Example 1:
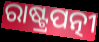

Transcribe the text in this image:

ରାଷ୍ଟ୍ରପତ୍ନୀ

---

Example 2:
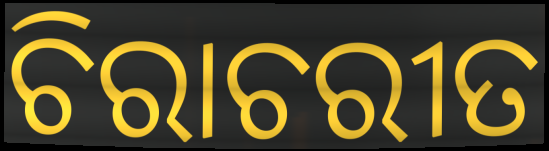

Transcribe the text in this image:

ଚିରାଚରୀତ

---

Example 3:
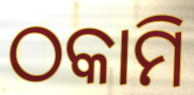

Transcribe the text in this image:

ଠକାମି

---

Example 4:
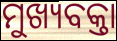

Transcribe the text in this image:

ମୁଖ୍ୟବକ୍ତା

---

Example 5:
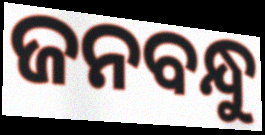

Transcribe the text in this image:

ଜନବନ୍ଧୁ